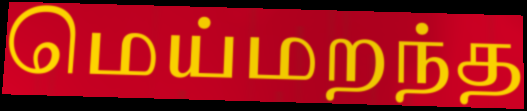
மெய்மறந்த